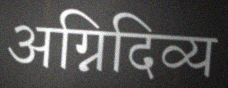
अग्निदिव्य